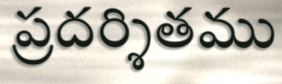
ప్రదర్శితము